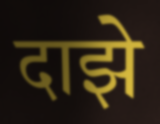
दाझे